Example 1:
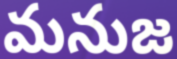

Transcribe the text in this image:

మనుజ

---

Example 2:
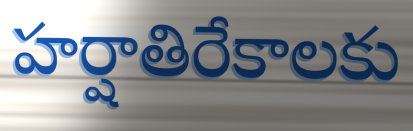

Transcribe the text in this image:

హర్షాతిరేకాలకు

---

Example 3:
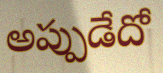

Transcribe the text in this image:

అప్పుడేదో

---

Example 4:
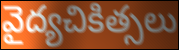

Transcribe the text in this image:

వైద్యచికిత్సలు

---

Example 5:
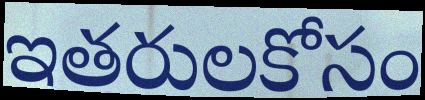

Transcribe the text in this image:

ఇతరులకోసం